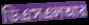
ডিএসএলআর